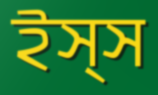
ইস্‌স